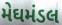
મેઘમંડલ